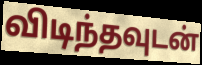
விடிந்தவுடன்